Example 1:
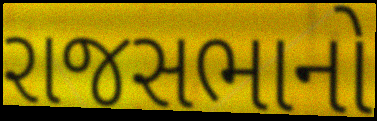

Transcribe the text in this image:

રાજસભાનો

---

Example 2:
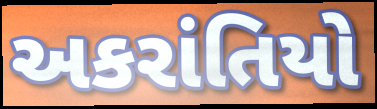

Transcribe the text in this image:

અકરાંતિયો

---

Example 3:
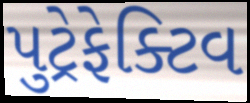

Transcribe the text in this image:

પુટ્રેફેક્ટિવ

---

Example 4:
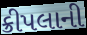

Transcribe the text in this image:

ક્રીપલાની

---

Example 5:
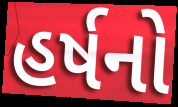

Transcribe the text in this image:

હર્ષનો